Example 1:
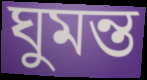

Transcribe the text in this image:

ঘুমন্ত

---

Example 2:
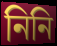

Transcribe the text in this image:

নিনি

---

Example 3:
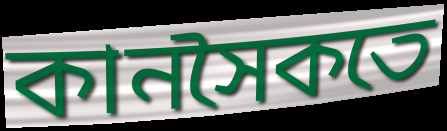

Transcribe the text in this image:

কানসৈকতে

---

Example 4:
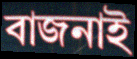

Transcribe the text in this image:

বাজনাই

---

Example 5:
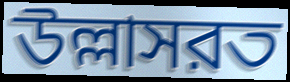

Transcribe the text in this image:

উল্লাসরত